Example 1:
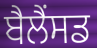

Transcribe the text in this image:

ਬੈਲੈਂਸਡ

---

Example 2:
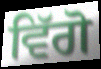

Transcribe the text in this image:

ਵਿੱਗੋ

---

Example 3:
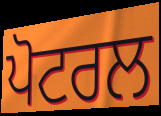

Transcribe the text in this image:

ਪੋਟਰਲ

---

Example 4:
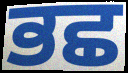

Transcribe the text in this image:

ਭਛ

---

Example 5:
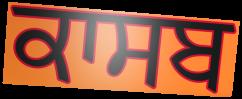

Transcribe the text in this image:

ਕਾਸਬ